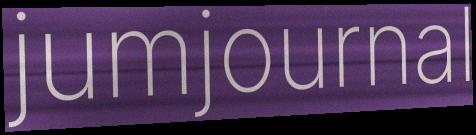
jumjournal